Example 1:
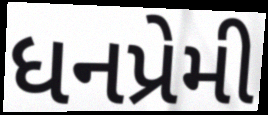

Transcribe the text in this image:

ધનપ્રેમી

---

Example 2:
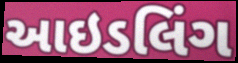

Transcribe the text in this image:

આઇડલિંગ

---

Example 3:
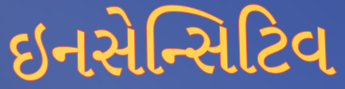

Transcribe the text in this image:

ઇનસેન્સિટિવ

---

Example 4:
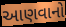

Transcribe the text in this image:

આણવાનો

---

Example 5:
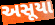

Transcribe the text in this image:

અસૂયા